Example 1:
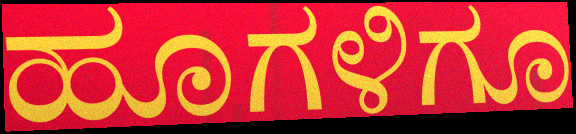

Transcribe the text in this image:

ಹೂಗಳಿಗೂ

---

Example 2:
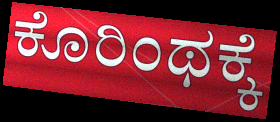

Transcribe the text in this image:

ಕೊರಿಂಥಕ್ಕೆ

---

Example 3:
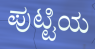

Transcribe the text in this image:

ಪುಟ್ಟಿಯ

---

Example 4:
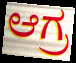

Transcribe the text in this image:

ಆಗ್ರ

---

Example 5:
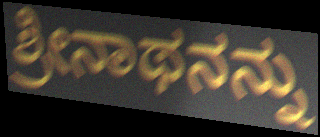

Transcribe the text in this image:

ಶ್ರೀನಾಥನನ್ನು